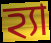
হ্যা